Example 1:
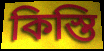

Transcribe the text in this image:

কিস্তি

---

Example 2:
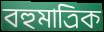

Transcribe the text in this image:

বহুমাত্ৰিক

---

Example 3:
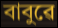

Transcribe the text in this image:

বাবুৱে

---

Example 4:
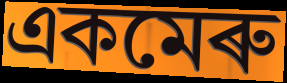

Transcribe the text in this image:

একমেৰু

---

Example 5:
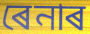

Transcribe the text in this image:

ৰেনাৰ